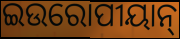
ଇଉରୋପୀୟାନ୍